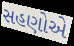
સહણોએ